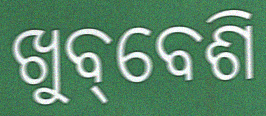
ଖୁବ୍‌ବେଶି